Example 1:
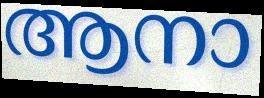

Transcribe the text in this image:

ആനാ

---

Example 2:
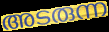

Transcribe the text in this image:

അടരുന്ന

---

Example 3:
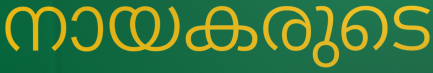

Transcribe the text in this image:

നായകരുടെ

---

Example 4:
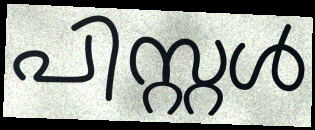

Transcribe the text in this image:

പിസ്റ്റൾ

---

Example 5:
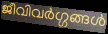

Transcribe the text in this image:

ജീവിവർഗ്ഗങ്ങൾ